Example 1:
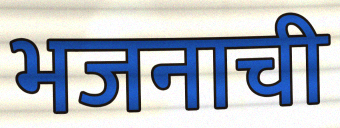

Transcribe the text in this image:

भजनाची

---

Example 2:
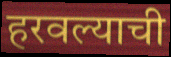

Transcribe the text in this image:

हरवल्याची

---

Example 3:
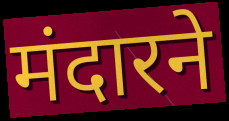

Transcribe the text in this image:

मंदारने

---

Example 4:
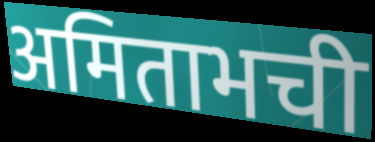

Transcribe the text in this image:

अमिताभची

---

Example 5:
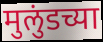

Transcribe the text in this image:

मुलुंडच्या